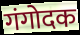
गंगोदक